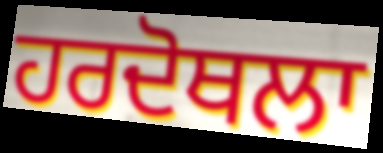
ਹਰਦੋਥਲਾ